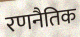
रणनैतिक